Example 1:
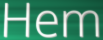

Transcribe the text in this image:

Hem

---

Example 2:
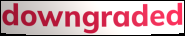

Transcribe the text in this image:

downgraded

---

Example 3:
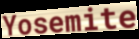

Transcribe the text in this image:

Yosemite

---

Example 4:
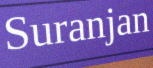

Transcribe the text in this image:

Suranjan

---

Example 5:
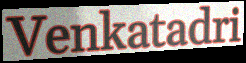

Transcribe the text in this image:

Venkatadri